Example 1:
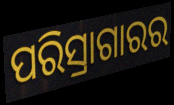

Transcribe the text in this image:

ପରିସ୍ରାଗାରର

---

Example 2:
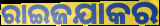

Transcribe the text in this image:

ରାଇଜଯାକର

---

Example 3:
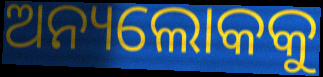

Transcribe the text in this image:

ଅନ୍ୟଲୋକକୁ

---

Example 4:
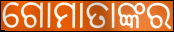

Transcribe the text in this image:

ଗୋମାତାଙ୍କର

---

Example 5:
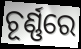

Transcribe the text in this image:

ଚୂର୍ଣ୍ଣରେ